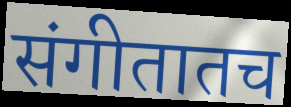
संगीतातच